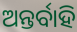
ଅନ୍ତର୍ବାହି